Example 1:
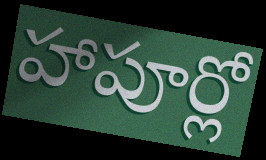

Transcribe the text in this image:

హాపూర్లో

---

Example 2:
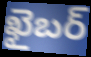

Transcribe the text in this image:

ఖైబర్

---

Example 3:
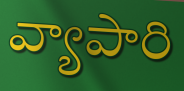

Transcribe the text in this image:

వ్యాపారి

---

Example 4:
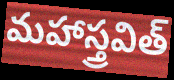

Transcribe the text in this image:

మహాస్త్రవిత్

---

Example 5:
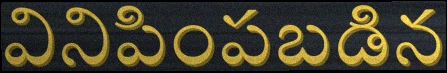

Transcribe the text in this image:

వినిపింపబడిన